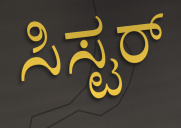
ಸಿಸ್ಟರ್